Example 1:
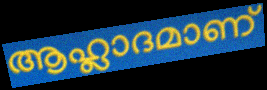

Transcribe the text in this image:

ആഹ്ലാദമാണ്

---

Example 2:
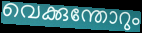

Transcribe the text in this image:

വെക്കുന്തോറും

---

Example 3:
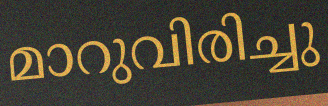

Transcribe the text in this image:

മാറുവിരിച്ചു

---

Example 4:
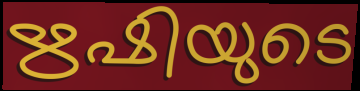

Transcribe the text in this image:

ഋഷിയുടെ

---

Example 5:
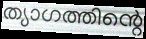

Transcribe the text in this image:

ത്യാഗത്തിന്റെ